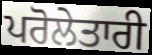
ਪਰੋਲੇਤਾਰੀ